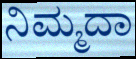
ನಿಮ್ಮದಾ